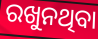
ରଖୁନଥିବା